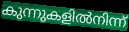
കുന്നുകളിൽനിന്ന്